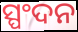
ସ୍ପଂଦନ